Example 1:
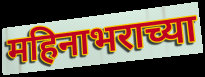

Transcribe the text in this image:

महिनाभराच्या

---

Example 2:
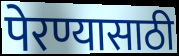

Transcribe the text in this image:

पेरण्यासाठी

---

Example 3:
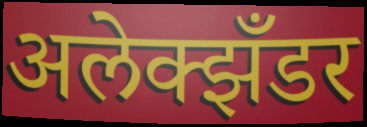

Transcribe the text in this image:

अलेक्झँडर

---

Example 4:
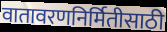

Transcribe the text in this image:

वातावरणनिर्मितीसाठी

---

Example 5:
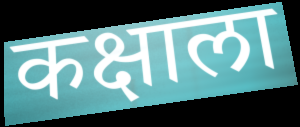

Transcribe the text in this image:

कक्षाला